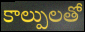
కాల్పులతో